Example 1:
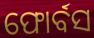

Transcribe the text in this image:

ଫୋର୍ବସ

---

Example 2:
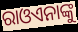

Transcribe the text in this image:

ରାଓଏନାଙ୍କୁ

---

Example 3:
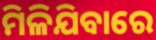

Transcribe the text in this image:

ମିଳିଯିବାରେ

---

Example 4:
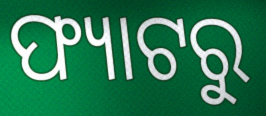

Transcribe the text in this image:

ଫ୍ୟାଟରୁ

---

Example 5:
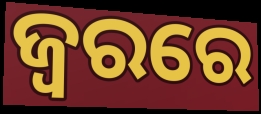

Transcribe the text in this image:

ଜ୍ବରରେ